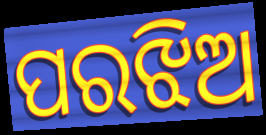
ପରଝିଅ